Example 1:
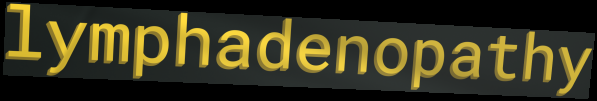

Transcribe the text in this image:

lymphadenopathy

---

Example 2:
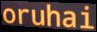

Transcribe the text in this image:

oruhai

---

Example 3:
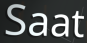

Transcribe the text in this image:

Saat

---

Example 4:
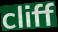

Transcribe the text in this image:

cliff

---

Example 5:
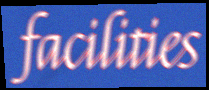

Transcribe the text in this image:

facilities